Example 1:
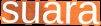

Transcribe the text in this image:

suara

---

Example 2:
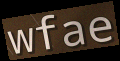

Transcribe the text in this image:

wfae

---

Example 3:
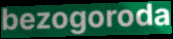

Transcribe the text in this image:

bezogoroda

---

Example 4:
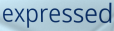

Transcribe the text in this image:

expressed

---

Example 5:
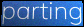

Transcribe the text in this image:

parting